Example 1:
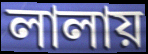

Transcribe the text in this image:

লালায়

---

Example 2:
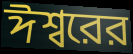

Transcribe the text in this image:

ঈশ্বরের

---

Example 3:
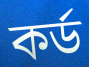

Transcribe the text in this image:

কর্ড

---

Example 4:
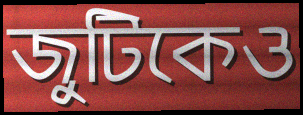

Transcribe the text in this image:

জুটিকেও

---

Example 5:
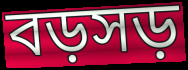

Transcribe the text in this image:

বড়সড়